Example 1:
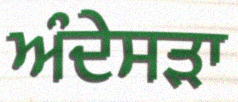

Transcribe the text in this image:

ਅੰਦੇਸੜਾ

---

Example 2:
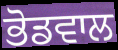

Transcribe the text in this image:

ਭੋਡਵਾਲ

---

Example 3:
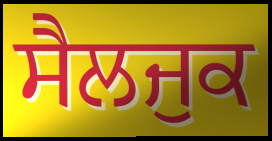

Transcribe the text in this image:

ਸੈਲਜੁਕ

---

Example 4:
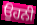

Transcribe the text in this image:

ਉਹਨੀ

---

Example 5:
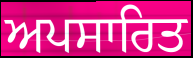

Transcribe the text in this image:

ਅਪਸਾਰਿਤ